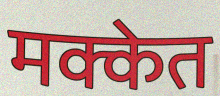
मक्केत